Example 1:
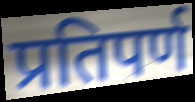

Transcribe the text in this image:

प्रतिपर्ण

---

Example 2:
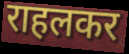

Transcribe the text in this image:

राहलकर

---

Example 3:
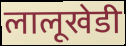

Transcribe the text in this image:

लालूखेडी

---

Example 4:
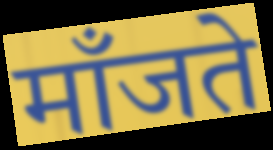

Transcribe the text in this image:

माँजते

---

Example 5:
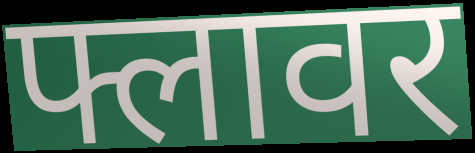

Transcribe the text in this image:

फ्लावर